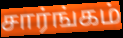
சார்ங்கம்